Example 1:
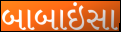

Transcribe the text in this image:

બાબાઇંસા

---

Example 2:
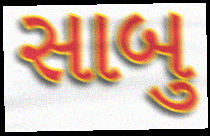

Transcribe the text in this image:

સાબુ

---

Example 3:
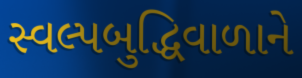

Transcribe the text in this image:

સ્વલ્પબુદ્ધિવાળાને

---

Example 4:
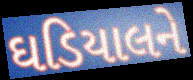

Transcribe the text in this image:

ઘડિયાલને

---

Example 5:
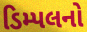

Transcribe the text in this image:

ડિમ્પલનો